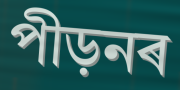
পীড়নৰ